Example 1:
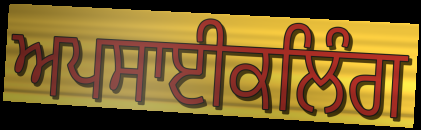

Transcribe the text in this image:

ਅਪਸਾਈਕਲਿੰਗ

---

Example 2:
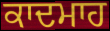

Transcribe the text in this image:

ਕਾਦਮਾਹ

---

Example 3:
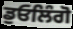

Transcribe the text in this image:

ਡੁਓਲਿੰਗੋ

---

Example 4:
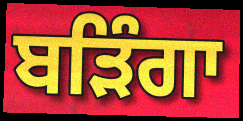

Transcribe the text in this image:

ਬੜਿੰਗਾ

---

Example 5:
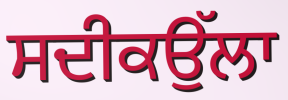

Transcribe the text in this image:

ਸਦੀਕਉੱਲਾ